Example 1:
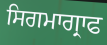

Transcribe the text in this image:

ਸਿਗਮਾਗ੍ਰਾਫ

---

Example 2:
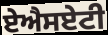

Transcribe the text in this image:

ਏਐਸਏਟੀ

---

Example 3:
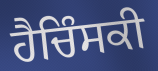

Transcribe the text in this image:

ਹੈਚਿੰਸਕੀ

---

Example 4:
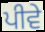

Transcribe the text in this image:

ਪੀਵੇ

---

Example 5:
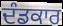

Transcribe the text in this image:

ਦੰਡਕਾਰ